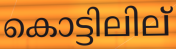
കൊട്ടിലില്